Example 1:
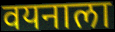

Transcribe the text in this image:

वयनाला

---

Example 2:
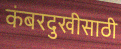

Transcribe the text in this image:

कंबरदुखीसाठी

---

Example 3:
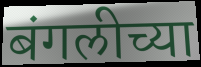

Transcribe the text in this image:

बंगलीच्या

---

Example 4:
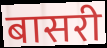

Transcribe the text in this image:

बासरी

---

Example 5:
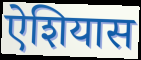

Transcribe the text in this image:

ऐशियास